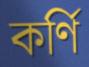
কর্ণি